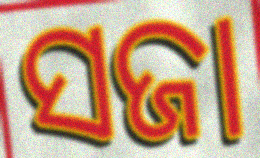
ସଜା